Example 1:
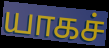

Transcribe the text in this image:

யாகச்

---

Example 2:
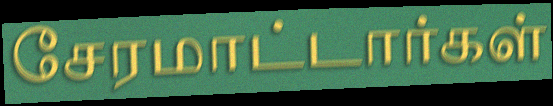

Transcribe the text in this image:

சேரமாட்டார்கள்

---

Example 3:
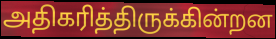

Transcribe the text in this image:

அதிகரித்திருக்கின்றன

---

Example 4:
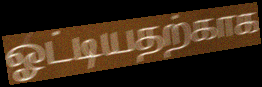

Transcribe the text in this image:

ஓட்டியதற்காக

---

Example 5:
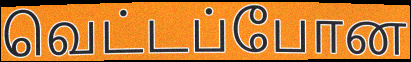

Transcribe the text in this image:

வெட்டப்போன